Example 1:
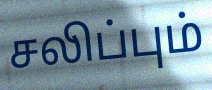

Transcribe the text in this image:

சலிப்பும்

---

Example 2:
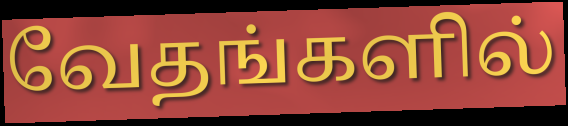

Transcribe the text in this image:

வேதங்களில்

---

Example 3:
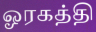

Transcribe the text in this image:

ஓரகத்தி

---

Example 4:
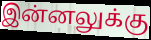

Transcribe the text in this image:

இன்னலுக்கு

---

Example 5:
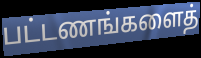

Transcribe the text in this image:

பட்டணங்களைத்